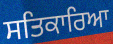
ਸਤਿਕਾਰਿਆ